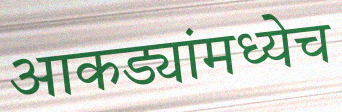
आकड्यांमध्येच